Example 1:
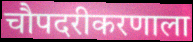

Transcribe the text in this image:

चौपदरीकरणाला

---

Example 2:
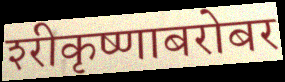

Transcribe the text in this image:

श्रीकृष्णाबरोबर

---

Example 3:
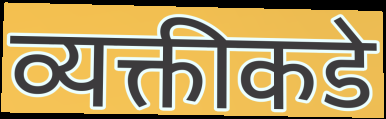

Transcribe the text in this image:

व्यक्तीकडे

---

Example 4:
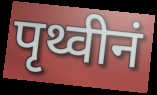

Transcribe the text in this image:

पृथ्वीनं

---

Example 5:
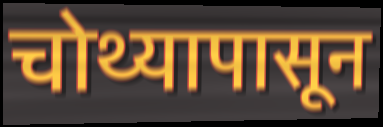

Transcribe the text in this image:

चोथ्यापासून